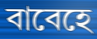
বাবেহে